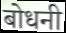
बोधनी